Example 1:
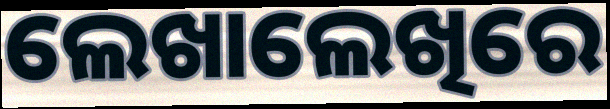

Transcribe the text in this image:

ଲେଖାଲେଖିରେ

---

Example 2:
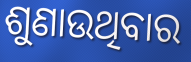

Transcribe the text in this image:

ଶୁଣାଉଥିବାର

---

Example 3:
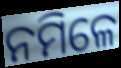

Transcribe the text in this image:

ନମିଳେ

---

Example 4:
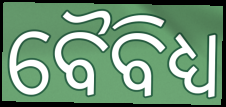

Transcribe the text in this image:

ବୈବିଧ୍ୟ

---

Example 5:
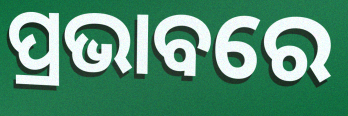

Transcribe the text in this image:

ପ୍ରଭାବରେ